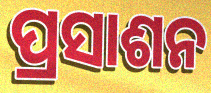
ପ୍ରସାଶନ